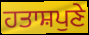
ਹਤਾਸ਼ਪੁਣੇ